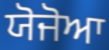
ਯੋਜੋਆ